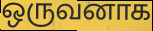
ஒருவனாக